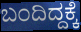
ಬಂದಿದ್ದಕ್ಕೆ